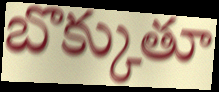
బొక్కుతూ